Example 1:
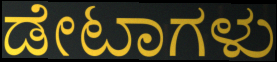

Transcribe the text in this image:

ಡೇಟಾಗಳು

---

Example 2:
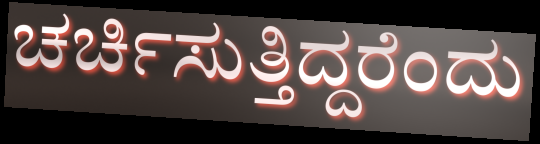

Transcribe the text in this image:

ಚರ್ಚಿಸುತ್ತಿದ್ದರೆಂದು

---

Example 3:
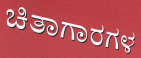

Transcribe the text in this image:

ಚಿತಾಗಾರಗಳ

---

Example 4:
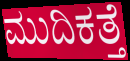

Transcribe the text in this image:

ಮುದಿಕತ್ತೆ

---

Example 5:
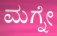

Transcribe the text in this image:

ಮಗ್ನೇ